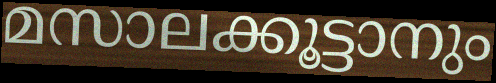
മസാലക്കൂട്ടാനും